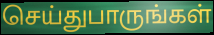
செய்துபாருங்கள்